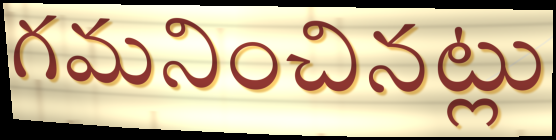
గమనించినట్లు